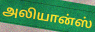
அலியான்ஸ்